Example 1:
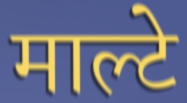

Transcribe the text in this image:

माल्टे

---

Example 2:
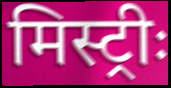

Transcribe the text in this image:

मिस्ट्रीः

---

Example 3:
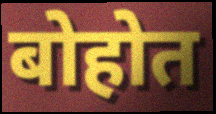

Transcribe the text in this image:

बोहोत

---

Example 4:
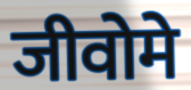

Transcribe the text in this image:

जीवोमे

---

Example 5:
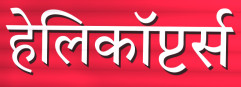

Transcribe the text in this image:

हेलिकॉप्टर्स